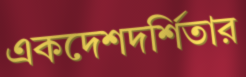
একদেশদর্শিতার